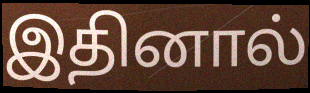
இதினால்